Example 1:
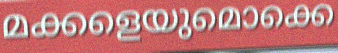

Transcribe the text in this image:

മക്കളെയുമൊക്കെ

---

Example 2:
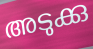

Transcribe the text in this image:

അടുക്കു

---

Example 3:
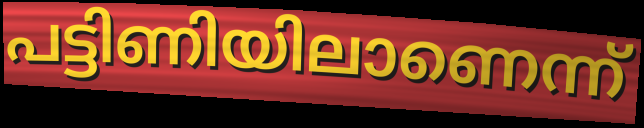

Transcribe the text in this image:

പട്ടിണിയിലാണെന്ന്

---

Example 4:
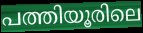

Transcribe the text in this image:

പത്തിയൂരിലെ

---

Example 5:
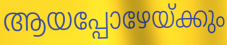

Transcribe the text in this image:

ആയപ്പോഴേയ്ക്കും